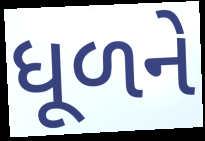
ધૂળને